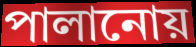
পালানোয়